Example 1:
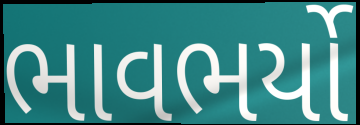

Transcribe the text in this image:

ભાવભર્યો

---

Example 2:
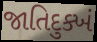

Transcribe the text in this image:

જાતિદુક્ખં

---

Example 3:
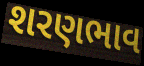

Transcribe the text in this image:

શરણભાવ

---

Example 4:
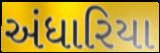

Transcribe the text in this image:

અંધારિયા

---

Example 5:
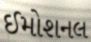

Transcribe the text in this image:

ઈમોશનલ